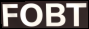
FOBT